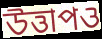
উত্তাপও